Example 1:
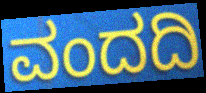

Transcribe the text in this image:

ವಂದದಿ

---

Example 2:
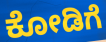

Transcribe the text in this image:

ಕೋಡಿಗೆ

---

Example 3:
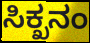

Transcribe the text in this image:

ಸಿಕ್ಖನಂ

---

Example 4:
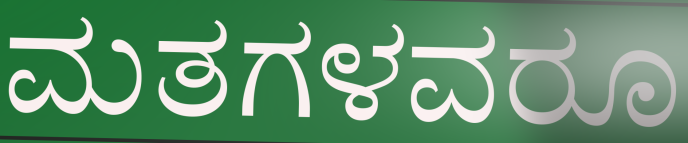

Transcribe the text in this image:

ಮತಗಳವರೂ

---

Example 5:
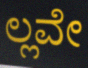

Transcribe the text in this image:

ಲ್ಲವೇ